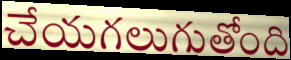
చేయగలుగుతోంది